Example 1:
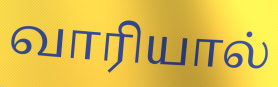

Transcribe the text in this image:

வாரியால்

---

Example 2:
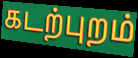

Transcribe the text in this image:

கடற்புறம்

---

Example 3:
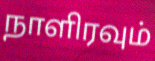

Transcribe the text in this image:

நாளிரவும்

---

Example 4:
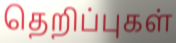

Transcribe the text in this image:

தெறிப்புகள்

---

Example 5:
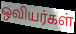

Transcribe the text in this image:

ஒவியர்கள்